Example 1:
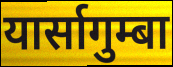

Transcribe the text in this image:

यार्सागुम्बा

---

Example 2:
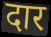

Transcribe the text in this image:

दार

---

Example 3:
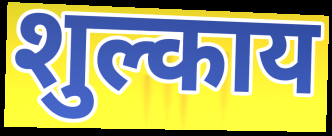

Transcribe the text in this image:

शुल्काय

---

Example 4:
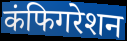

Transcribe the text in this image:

कंफिगरेशन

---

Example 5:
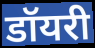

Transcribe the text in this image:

डॉयरी